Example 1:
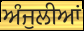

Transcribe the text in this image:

ਅੰਜੁਲੀਆਂ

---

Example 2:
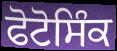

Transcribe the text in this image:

ਫੋਟੋਸਿੰਕ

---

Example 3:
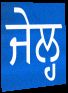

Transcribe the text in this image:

ਜੇਲ੍ਹ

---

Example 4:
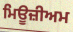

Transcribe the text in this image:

ਮਿਊਜ਼ੀਅਮ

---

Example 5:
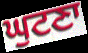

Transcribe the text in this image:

ਘੁਟਣਾ